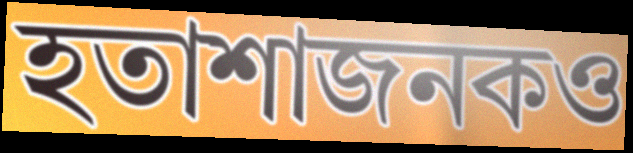
হতাশাজনকও